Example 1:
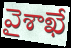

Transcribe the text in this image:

వైశాఖే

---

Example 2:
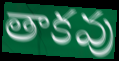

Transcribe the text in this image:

తాకవు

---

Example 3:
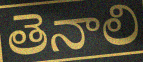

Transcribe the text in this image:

తెనాలి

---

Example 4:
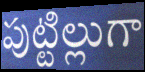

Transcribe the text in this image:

పుట్టిల్లుగా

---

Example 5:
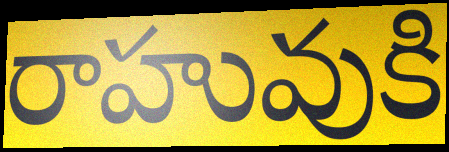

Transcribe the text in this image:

రాహువుకి